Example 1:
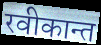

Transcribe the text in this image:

रवीकान्त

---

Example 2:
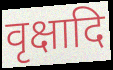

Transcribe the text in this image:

वृक्षादि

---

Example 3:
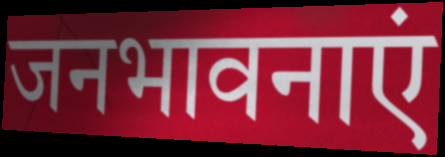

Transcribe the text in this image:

जनभावनाएं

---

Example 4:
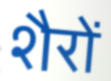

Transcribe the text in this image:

शैरों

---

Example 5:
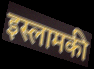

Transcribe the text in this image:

इस्लामकी